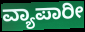
ವ್ಯಾಪಾರೀ